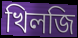
খিলজি